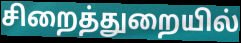
சிறைத்துறையில்